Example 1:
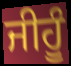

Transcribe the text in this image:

ਜੀਹੂੰ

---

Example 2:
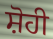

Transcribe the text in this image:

ਸ਼ੋਹੀ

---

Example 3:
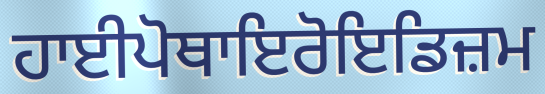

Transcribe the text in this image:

ਹਾਈਪੋਥਾਇਰੋਇਡਿਜ਼ਮ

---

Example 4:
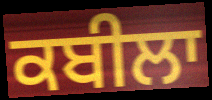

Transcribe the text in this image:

ਕਬੀਲਾ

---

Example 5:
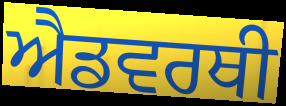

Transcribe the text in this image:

ਐਡਵਰਥੀ